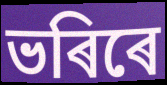
ভৰিৰে